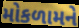
મોકળામને